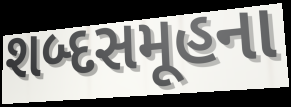
શબ્દસમૂહના